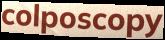
colposcopy